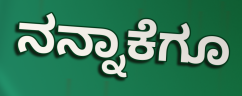
ನನ್ನಾಕೆಗೂ